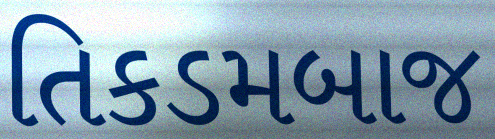
તિકડમબાજ